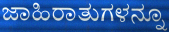
ಜಾಹಿರಾತುಗಳನ್ನೂ